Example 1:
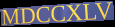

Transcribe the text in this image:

MDCCXLV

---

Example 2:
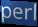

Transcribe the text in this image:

perl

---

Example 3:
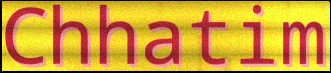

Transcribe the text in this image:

Chhatim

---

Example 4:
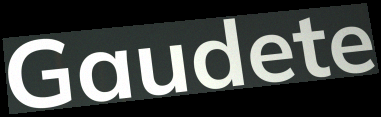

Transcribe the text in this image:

Gaudete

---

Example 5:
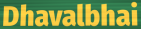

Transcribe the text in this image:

Dhavalbhai